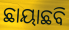
ଛାୟାଛବି